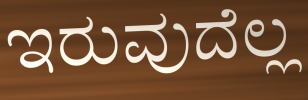
ಇರುವುದೆಲ್ಲ